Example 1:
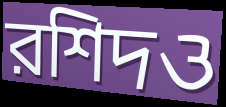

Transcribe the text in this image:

রশিদও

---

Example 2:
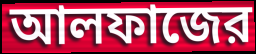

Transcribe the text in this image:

আলফাজের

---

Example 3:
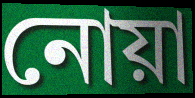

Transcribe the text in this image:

নোয়া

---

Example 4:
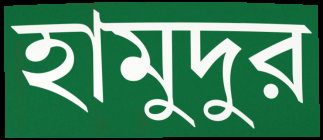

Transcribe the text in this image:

হামুদুর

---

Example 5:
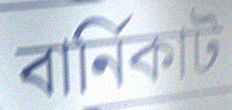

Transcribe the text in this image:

বার্নিকাট